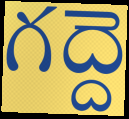
గద్దె